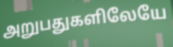
அறுபதுகளிலேயே